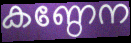
കണ്ഠേന